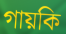
গায়কি